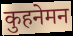
कुहनेमन